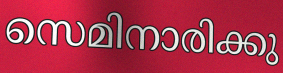
സെമിനാരിക്കു